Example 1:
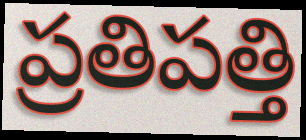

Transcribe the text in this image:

ప్రతిపత్తి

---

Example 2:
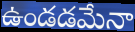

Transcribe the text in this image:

ఉండడమేనా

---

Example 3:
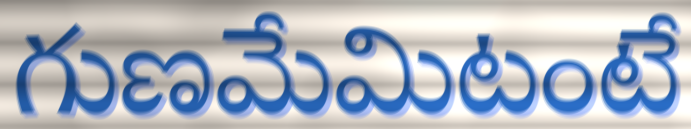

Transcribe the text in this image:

గుణమేమిటంటే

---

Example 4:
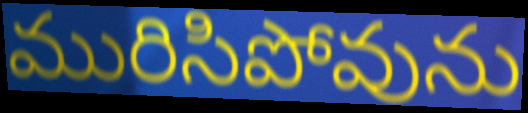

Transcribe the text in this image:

మురిసిపోవును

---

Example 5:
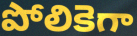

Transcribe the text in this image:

పోలికెగా